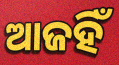
ଆଜହିଁ